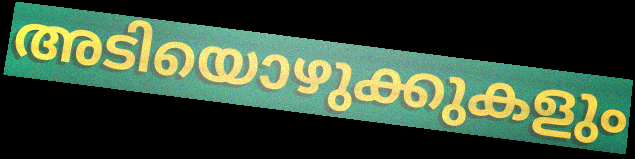
അടിയൊഴുക്കുകളും